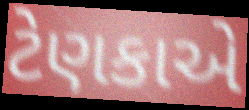
ટેણકાએ